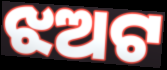
ଝଅଟ